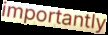
importantly